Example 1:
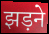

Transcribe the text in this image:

झड़ने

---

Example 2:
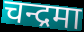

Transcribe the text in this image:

चन्द्रमा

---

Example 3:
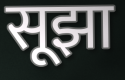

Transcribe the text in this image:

सूझा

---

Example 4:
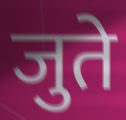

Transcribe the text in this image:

जुते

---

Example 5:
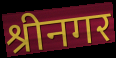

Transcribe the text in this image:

श्रीनगर